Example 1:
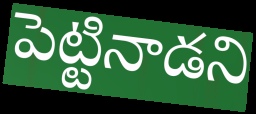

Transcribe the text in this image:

పెట్టినాడని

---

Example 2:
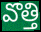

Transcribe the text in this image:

వొత్తి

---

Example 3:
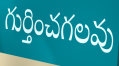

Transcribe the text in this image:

గుర్తించగలవు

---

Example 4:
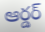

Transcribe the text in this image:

ఆర్డర్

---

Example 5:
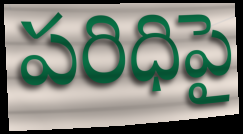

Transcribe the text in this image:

పరిధిపై